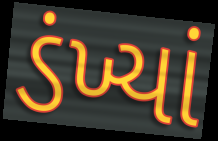
ડંખ્યાં